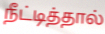
நீட்டித்தால்